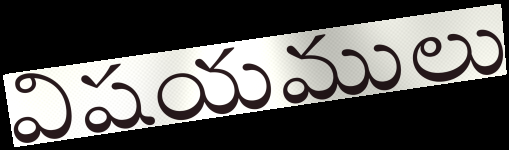
విషయములు